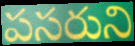
పసరుని